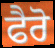
ਫੈਰੋ